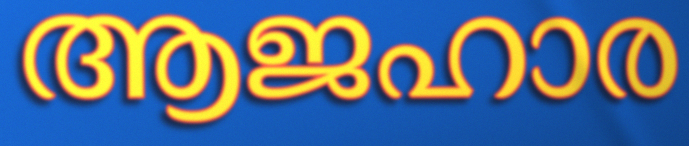
ആജഹാര